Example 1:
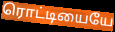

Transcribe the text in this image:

ரொட்டியையே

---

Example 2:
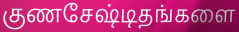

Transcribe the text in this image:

குணசேஷ்டிதங்களை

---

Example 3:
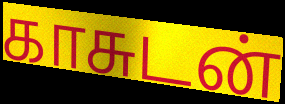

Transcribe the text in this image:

காசுடன்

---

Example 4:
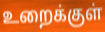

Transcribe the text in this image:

உறைக்குள்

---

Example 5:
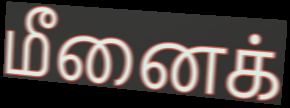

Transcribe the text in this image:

மீனைக்